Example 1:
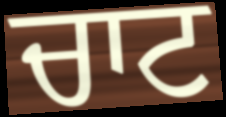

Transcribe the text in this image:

ਚਾਟ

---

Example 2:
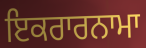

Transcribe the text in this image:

ਇਕਰਾਰਨਾਮਾ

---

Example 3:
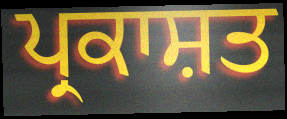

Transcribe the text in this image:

ਪ੍ਰਕਾਸ਼ਤ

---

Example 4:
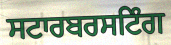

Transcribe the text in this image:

ਸਟਾਰਬਰਸਟਿੰਗ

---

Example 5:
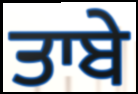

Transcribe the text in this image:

ਤਾਬੇ